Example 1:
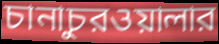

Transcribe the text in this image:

চানাচুরওয়ালার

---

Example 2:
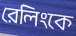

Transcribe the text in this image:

রেলিংকে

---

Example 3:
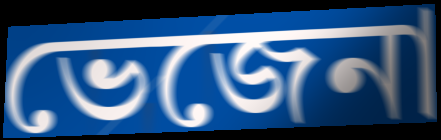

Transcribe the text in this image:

ভেজেনা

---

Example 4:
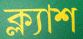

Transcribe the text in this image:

ক্ল্যাশ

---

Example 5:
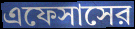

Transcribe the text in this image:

এফেসাসের